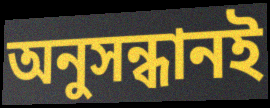
অনুসন্ধানই